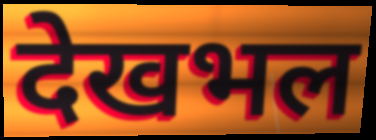
देखभल